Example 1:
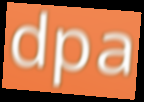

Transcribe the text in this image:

dpa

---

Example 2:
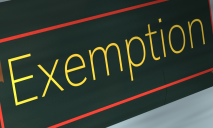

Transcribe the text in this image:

Exemption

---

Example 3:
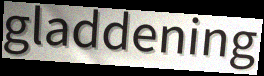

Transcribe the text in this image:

gladdening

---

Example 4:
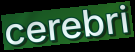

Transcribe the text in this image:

cerebri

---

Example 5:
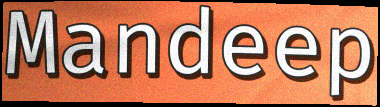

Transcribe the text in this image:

Mandeep